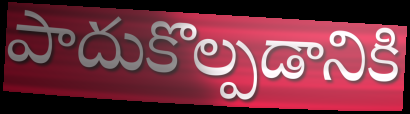
పాదుకొల్పడానికి